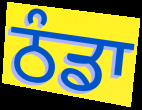
ਠੰਡਾ